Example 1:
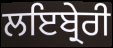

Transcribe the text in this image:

ਲਇਬ੍ਰੇਰੀ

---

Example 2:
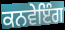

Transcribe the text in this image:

ਕਨਵੇਇੰਗ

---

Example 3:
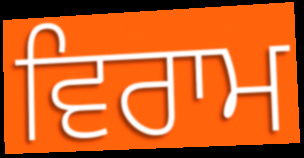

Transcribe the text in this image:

ਵਿਰਾਮ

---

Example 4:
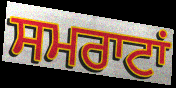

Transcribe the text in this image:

ਸਮਰਾਟਾਂ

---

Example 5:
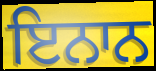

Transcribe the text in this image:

ਇਨਾਨ